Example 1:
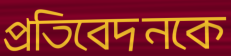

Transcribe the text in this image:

প্রতিবেদনকে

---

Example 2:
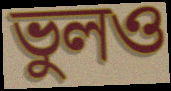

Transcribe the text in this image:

ভুলও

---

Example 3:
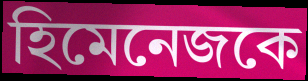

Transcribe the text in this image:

হিমেনেজকে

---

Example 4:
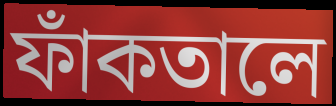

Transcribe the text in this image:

ফাঁকতালে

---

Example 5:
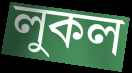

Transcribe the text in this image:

লুকল